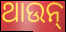
ଥାଉନ୍